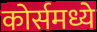
कोर्समध्ये